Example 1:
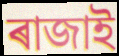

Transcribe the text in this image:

ৰাজাই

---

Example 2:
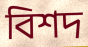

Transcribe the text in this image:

বিশদ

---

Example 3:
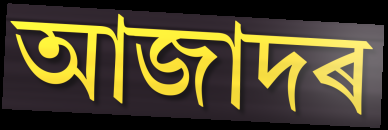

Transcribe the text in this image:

আজাদৰ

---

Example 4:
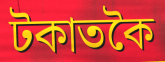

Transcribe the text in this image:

টকাতকৈ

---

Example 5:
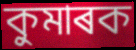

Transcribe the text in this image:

কুমাৰক